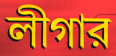
লীগার